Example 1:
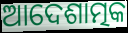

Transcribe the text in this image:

ଆଦେଶାତ୍ମକ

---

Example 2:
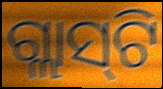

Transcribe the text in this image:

ଗ୍ଲାସ୍‍ଟି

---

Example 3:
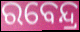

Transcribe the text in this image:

ରବେନ୍ଦ୍ର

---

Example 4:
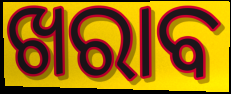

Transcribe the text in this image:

ଖରାବ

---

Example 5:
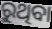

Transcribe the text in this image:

ରୁଥିବା